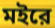
মইরে